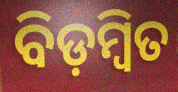
ବିଡ଼ମ୍ବିତ